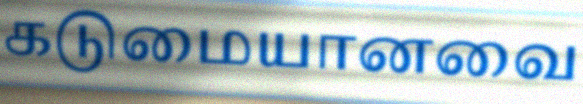
கடுமையானவை